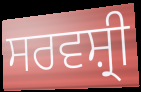
ਸਰਵਸ਼੍ਰੀ